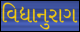
વિદ્યાનુરાગ